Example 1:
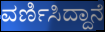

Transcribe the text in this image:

ವರ್ಣಿಸಿದ್ದಾನೆ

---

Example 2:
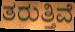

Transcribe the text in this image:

ತರುತ್ತಿವೆ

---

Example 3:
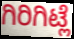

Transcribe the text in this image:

ಗಿರಿಗಿಟ್ಲೆ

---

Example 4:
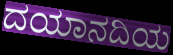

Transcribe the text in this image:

ದಯಾನದಿಯ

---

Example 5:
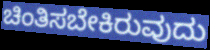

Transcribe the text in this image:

ಚಿಂತಿಸಬೇಕಿರುವುದು